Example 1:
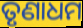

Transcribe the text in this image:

ତୃଣାଧମ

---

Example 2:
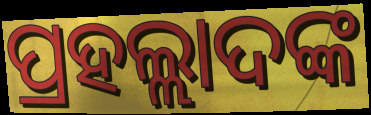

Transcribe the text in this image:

ପ୍ରହଲ୍ଲାଦଙ୍କ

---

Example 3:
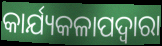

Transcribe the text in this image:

କାର୍ଯ୍ୟକଳାପଦ୍ୱାରା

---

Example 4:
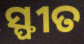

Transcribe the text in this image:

ସ୍ଫୀତ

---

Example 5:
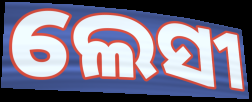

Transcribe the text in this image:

ଲେସୀ